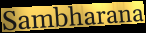
Sambharana